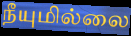
நீயுமில்லை